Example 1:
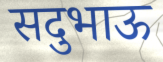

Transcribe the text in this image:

सदुभाऊ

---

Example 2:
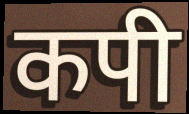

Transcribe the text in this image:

कपी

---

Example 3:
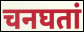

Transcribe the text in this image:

चनघतां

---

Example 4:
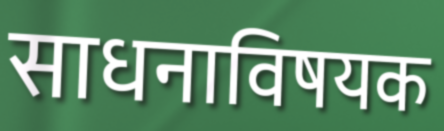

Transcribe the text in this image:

साधनाविषयक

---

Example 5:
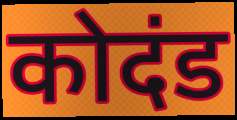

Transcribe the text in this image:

कोदंड